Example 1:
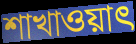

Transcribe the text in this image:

শাখাওয়াৎ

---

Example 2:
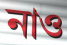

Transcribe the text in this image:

নাও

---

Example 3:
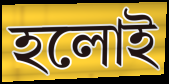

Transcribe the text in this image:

হলোই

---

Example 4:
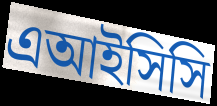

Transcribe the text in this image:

এআইসিসি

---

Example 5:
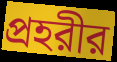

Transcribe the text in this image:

প্রহরীর